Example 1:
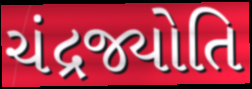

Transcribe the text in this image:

ચંદ્રજ્યોતિ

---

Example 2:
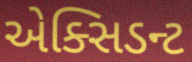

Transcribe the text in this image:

એક્સિડન્ટ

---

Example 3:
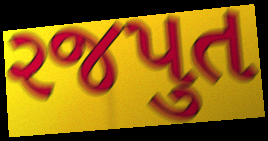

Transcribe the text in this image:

રજપુત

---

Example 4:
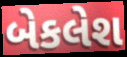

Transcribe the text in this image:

બેકલેશ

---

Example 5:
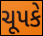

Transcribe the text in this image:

ચૂપકે